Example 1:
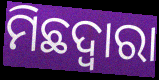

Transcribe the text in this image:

ମିଛଦ୍ଵାରା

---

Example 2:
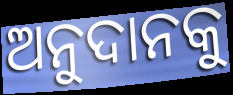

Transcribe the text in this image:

ଅନୁଦାନକୁ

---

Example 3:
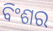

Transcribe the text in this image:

ବିଂଶର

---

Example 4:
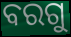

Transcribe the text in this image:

ବରଗୁ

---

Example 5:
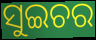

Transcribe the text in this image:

ସୁଇଚର